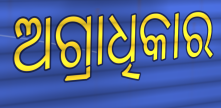
ଅଗ୍ରାଧିକାର